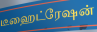
டீஹைட்ரேஷன்